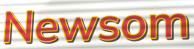
Newsom